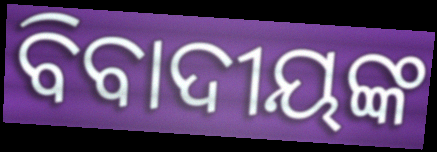
ବିବାଦୀୟଙ୍କ